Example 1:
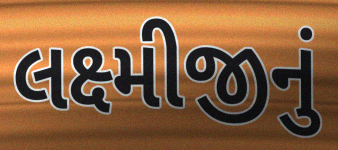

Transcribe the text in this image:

લક્ષ્મીજીનું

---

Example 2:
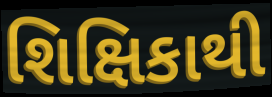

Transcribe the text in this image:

શિક્ષિકાથી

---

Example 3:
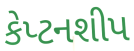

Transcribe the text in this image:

કેપ્ટનશીપ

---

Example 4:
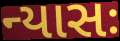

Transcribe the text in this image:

ન્યાસઃ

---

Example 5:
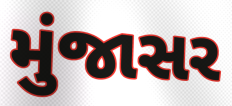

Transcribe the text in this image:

મુંજાસર